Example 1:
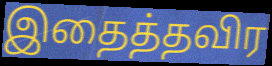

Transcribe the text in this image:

இதைத்தவிர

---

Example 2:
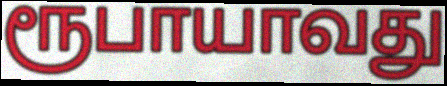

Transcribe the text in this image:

ரூபாயாவது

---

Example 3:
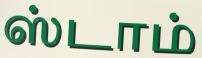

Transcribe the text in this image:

ஸ்டாம்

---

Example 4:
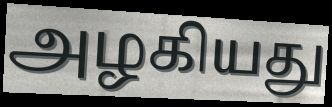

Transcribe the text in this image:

அழகியது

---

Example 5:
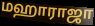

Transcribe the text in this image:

மஹாராஜா